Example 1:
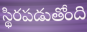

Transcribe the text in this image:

స్థిరపడుతోంది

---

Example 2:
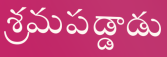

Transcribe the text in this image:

శ్రమపడ్డాడు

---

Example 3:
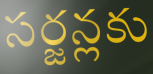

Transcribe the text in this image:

సర్జన్లకు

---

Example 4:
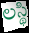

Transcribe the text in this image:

లస్థి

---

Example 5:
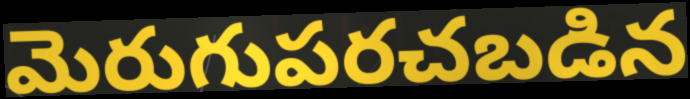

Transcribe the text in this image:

మెరుగుపరచబడిన